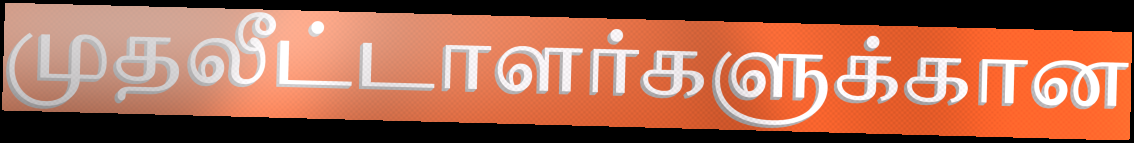
முதலீட்டாளர்களுக்கான